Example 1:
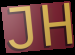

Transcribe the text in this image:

JH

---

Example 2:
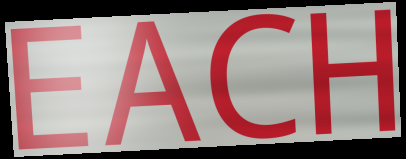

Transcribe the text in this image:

EACH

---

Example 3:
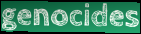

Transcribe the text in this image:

genocides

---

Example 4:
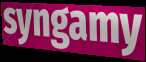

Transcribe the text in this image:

syngamy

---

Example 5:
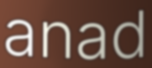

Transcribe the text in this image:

anad